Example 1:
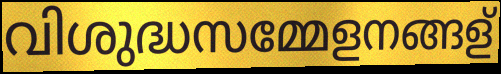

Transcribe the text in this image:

വിശുദ്ധസമ്മേളനങ്ങള്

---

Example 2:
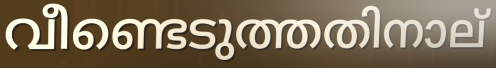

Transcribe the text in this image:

വീണ്ടെടുത്തതിനാല്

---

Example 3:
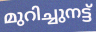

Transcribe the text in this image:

മുറിച്ചുനട്ട്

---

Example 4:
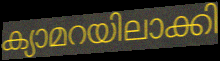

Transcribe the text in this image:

ക്യാമറയിലാക്കി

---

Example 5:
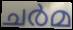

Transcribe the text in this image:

ചർമ